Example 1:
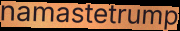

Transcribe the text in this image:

namastetrump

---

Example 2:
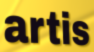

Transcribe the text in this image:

artis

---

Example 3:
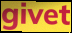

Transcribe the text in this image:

givet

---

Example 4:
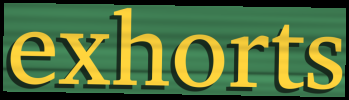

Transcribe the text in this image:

exhorts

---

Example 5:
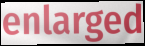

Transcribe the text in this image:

enlarged